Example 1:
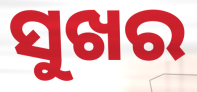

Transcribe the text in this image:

ସୁଖର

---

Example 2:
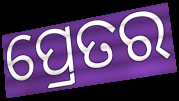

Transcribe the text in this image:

ପ୍ରେତର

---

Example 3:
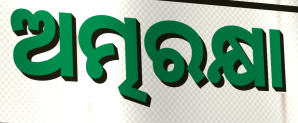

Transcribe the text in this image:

ଅତ୍ମରକ୍ଷା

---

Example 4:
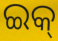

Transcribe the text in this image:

ଇକ୍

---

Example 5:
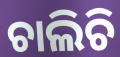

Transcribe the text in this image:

ଚାଲିଚି